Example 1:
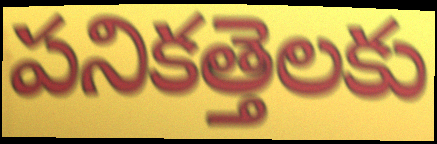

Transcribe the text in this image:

పనికత్తెలకు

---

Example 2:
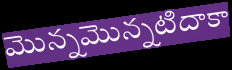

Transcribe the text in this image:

మొన్నమొన్నటిదాకా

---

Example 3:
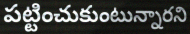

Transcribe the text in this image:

పట్టించుకుంటున్నారని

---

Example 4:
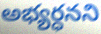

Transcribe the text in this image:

అభ్యర్ధనని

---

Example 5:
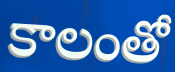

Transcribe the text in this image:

కాలంతో